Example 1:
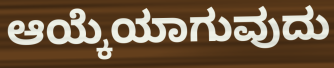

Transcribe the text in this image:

ಆಯ್ಕೆಯಾಗುವುದು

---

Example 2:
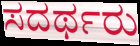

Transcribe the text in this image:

ಸದರ್ಥರು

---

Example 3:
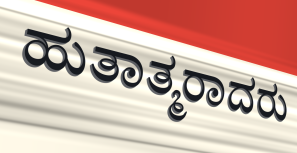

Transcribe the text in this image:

ಹುತಾತ್ಮರಾದರು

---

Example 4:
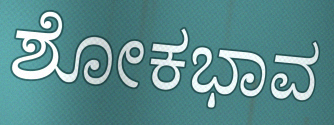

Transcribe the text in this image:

ಶೋಕಭಾವ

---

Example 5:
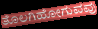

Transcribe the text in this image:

ತೊಲಗಿಹೋಗುವವು